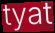
tyat